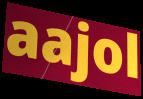
aajol